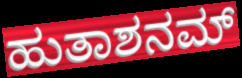
ಹುತಾಶನಮ್